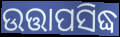
ଉତ୍ତାପସିଦ୍ଧ